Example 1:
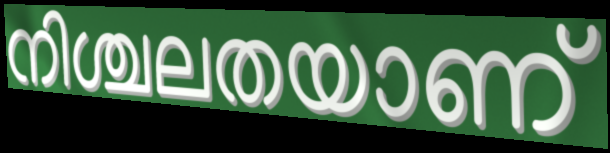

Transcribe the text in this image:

നിശ്ചലതയാണ്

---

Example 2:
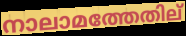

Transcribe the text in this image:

നാലാമത്തേതില്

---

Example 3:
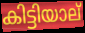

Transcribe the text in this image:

കിട്ടിയാല്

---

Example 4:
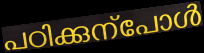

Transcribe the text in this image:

പഠിക്കുന്പോൾ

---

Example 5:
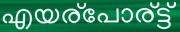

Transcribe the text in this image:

എയര്പോര്ട്ട്